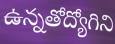
ఉన్నతోద్యోగిని